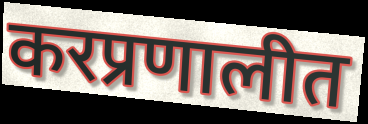
करप्रणालीत